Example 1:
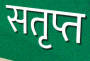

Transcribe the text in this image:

सतृप्त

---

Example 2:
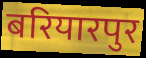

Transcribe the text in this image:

बरियारपुर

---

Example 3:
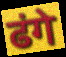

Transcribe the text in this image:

ढंगे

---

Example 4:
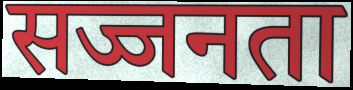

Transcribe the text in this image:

सज्जनता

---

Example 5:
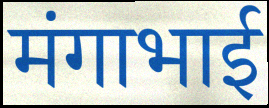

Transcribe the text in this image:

मंगाभाई